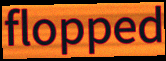
flopped